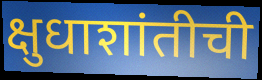
क्षुधाशांतीची